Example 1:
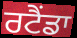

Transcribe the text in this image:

ਰਟੈਂਡਾ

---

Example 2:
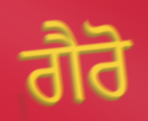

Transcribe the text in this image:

ਗੈਰੋ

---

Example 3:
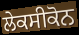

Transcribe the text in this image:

ਲੇਕਸੀਕੋਨ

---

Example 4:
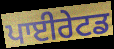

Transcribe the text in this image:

ਪਾਈਰੇਟਡ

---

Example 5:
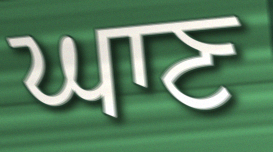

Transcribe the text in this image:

ਘਾਣ